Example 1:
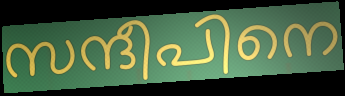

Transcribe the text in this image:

സന്ദീപിനെ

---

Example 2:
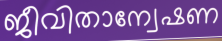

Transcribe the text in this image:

ജീവിതാന്വേഷണ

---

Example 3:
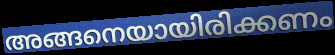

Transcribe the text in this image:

അങ്ങനെയായിരിക്കണം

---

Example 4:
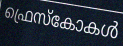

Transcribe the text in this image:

ഫ്രെസ്കോകൾ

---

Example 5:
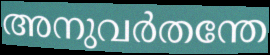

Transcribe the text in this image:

അനുവർതന്തേ